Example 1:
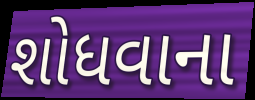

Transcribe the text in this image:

શોધવાના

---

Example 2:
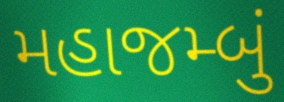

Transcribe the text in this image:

મહાજમ્બું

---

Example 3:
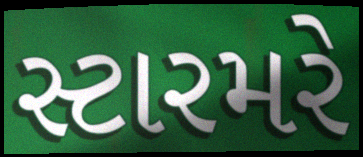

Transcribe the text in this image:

સ્ટારમરે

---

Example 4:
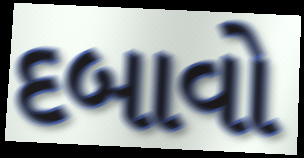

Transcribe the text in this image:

દબાવો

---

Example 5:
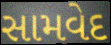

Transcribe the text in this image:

સામવેદ